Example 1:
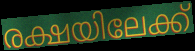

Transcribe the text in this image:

രക്ഷയിലേക്ക്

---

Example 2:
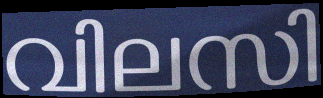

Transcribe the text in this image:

വിലസി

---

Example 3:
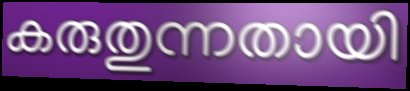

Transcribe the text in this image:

കരുതുന്നതായി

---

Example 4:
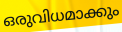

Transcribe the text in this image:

ഒരുവിധമാക്കും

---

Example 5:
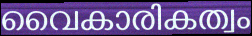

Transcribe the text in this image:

വൈകാരികത്വം